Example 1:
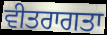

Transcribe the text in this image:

ਵੀਤਰਾਗਤਾ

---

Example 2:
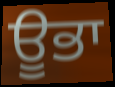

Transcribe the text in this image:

ਊਭਾ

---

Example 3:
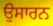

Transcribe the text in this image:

ਉਸਾਰਨ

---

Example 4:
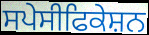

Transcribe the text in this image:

ਸਪੇਸੀਫਿਕੇਸ਼ਨ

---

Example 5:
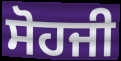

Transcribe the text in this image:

ਸੋਹਜੀ